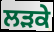
ਲੜਕੇ